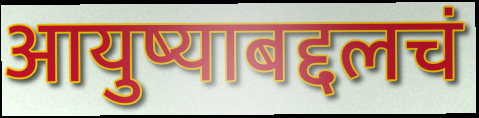
आयुष्याबद्दलचं